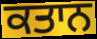
ਕਤਾਨ